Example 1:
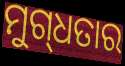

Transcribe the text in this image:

ମୁଗ୍‍ଧତାର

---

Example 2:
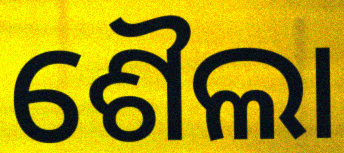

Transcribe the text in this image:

ଶୈଲା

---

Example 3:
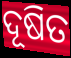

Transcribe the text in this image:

ଦୂଷିତ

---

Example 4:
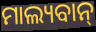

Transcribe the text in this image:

ମାଲ୍ୟବାନ୍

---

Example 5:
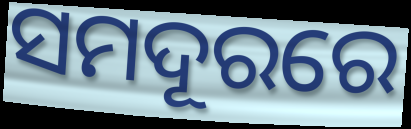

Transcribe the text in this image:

ସମଦୂରରେ